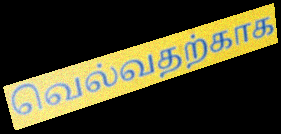
வெல்வதற்காக